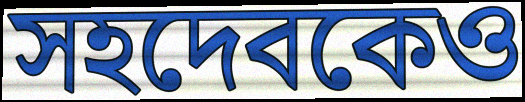
সহদেবকেও